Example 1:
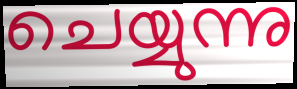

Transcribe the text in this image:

ചെയ്യുന്നു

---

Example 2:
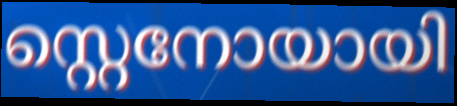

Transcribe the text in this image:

സ്റ്റെനോയായി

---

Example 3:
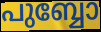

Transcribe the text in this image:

പുബ്ബോ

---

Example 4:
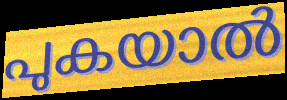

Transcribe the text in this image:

പുകയാൽ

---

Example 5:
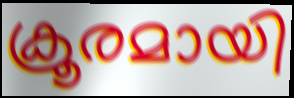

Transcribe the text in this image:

ക്രൂരമായി